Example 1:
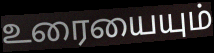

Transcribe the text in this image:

உரையையும்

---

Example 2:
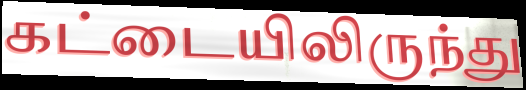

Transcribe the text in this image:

கட்டையிலிருந்து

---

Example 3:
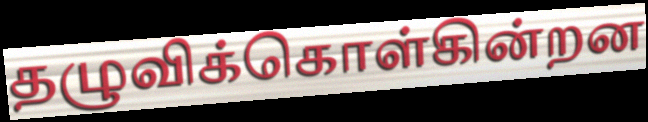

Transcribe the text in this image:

தழுவிக்கொள்கின்றன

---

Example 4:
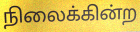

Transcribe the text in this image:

நிலைக்கின்ற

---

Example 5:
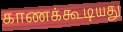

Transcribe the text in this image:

காணக்கூடியது